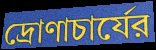
দ্রোণাচার্যের